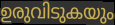
ഉരുവിടുകയും